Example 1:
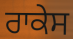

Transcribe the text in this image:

ਰਾਕੇਸ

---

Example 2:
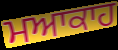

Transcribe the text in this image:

ਮਆਕਾਹ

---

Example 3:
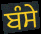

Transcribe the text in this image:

ਬੰਸੇ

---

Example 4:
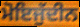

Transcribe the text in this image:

ਮੋਇਜੁੱਦੀਨ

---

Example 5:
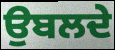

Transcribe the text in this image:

ਉਬਲਦੇ